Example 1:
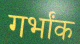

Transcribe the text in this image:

गर्भांक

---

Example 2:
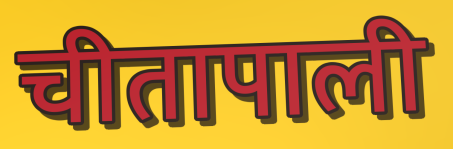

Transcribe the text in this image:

चीतापाली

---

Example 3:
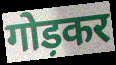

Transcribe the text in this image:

गोड़कर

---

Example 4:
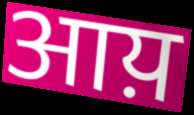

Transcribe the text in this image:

आय़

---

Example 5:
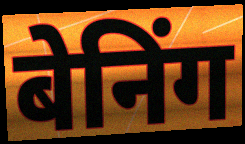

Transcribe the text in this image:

बेनिंग